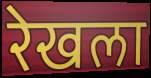
रेखला